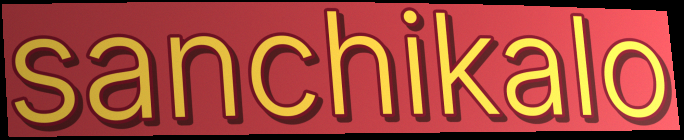
sanchikalo